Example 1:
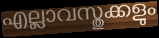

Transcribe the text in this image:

എല്ലാവസ്തുക്കളും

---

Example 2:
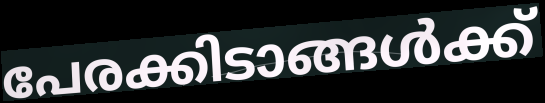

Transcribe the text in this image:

പേരക്കിടാങ്ങൾക്ക്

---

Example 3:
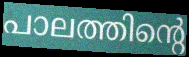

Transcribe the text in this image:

പാലത്തിന്റെ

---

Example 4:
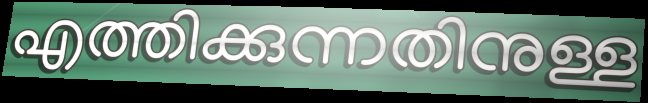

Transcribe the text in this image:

എത്തിക്കുന്നതിനുള്ള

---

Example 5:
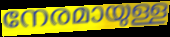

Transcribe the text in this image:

നേരമായുള്ള